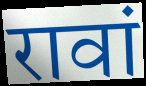
रावां